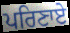
ਪਰਿਣਾਏ